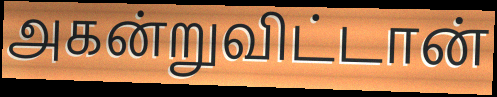
அகன்றுவிட்டான்